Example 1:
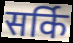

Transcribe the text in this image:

सर्कि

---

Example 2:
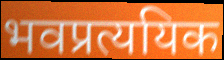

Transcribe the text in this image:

भवप्रत्ययिक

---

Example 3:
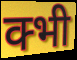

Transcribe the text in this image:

क्भी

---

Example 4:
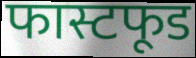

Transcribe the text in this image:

फास्‍टफूड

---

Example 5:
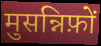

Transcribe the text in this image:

मुसन्निफ़ों